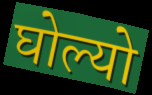
घोल्यो